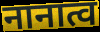
नानात्व